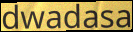
dwadasa